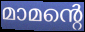
മാമന്റെ